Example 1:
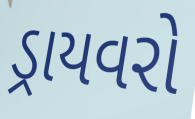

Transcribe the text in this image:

ડ્રાયવરો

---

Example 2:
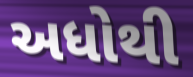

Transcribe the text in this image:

અધોથી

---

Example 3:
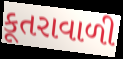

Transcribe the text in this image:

કૂતરાવાળી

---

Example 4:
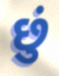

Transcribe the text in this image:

છું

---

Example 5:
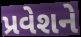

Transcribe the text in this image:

પ્રવેશને